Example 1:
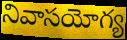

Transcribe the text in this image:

నివాసయోగ్య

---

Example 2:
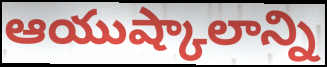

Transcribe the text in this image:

ఆయుష్కాలాన్ని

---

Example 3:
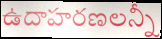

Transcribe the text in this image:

ఉదాహరణలన్నీ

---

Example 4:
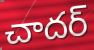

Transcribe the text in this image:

చాదర్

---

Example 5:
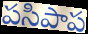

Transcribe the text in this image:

పసిపాప